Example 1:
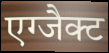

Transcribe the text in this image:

एग्जैक्ट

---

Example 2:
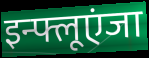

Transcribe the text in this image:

इन्फ्लूएंजा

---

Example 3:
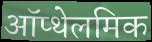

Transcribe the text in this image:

ऑप्थेलमिक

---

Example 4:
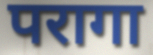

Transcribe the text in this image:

परागा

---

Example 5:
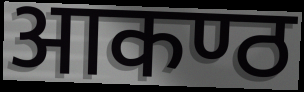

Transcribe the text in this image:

आकण्ठ